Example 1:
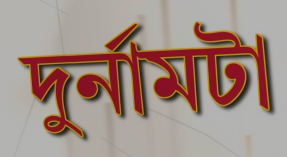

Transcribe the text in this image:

দুর্নামটা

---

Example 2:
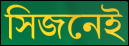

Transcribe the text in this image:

সিজনেই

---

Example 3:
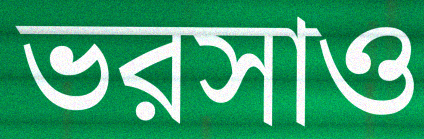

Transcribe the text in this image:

ভরসাও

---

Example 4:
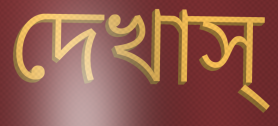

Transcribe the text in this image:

দেখাস্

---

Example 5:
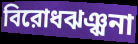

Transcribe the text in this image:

বিরোধঝঞ্ঝনা